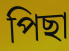
পিছা